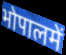
भोपालमें